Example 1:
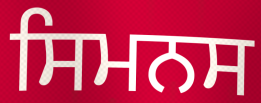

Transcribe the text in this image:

ਸਿਮਨਸ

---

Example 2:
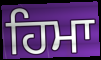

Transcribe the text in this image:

ਹਿਮਾ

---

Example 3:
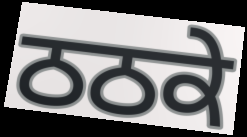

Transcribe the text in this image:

ਠਠਕੇ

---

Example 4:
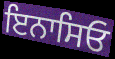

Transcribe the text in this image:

ਇਨਾਸਿਓ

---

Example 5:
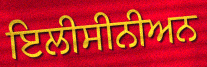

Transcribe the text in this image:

ਇਲੀਸੀਨੀਅਨ